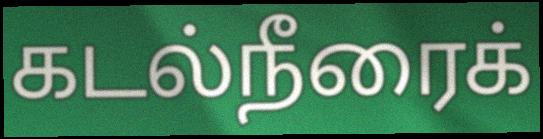
கடல்நீரைக்